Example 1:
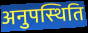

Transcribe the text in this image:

अनुपस्थिति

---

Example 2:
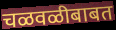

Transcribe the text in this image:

चळवळीबाबत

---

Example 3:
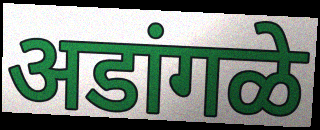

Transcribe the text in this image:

अडांगळे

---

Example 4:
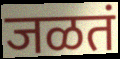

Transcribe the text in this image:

जळतं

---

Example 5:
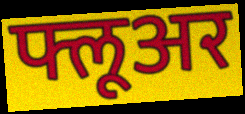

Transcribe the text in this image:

फ्लूअर